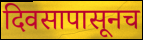
दिवसापासूनच